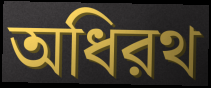
অধিরথ